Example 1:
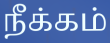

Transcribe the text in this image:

நீக்கம்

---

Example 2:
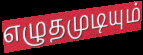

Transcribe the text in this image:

எழுதமுடியும்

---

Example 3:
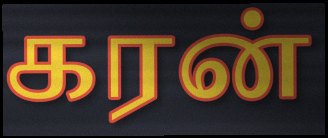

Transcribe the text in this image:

கரன்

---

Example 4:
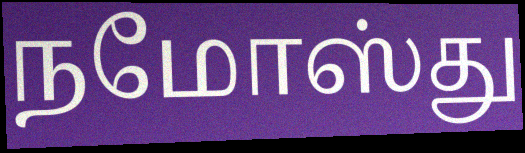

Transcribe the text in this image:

நமோஸ்து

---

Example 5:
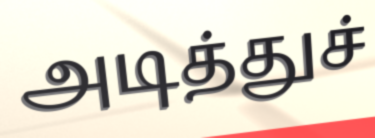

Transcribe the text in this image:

அடித்துச்